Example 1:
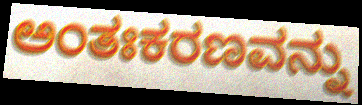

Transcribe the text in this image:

ಅಂತಃಕರಣವನ್ನು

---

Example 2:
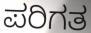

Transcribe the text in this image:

ಪರಿಗತ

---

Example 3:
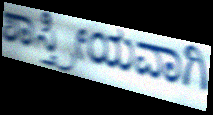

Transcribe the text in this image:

ಶಾಸ್ತ್ರೀಯವಾಗಿ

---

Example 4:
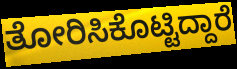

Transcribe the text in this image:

ತೋರಿಸಿಕೊಟ್ಟಿದ್ದಾರೆ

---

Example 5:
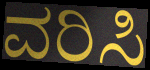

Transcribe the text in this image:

ವರಿಸಿ